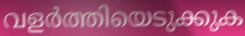
വളർത്തിയെടുക്കുക